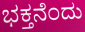
ಭಕ್ತನೆಂದು